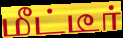
மீட்டீர்